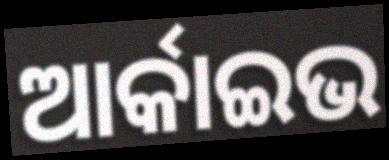
ଆର୍କାଇଭ